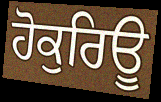
ਹੋਕੁਰਿਊ